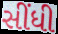
સીંધી